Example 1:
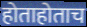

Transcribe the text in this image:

होताहोताच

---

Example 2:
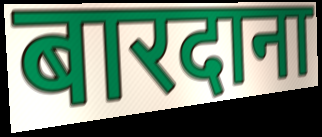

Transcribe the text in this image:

बारदाना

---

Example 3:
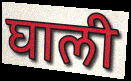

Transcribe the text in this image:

घाली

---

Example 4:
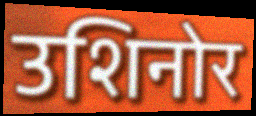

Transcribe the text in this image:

उशिनोर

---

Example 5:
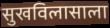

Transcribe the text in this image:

सुखविलासाला